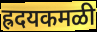
ह्रदयकमळी